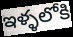
ఇళ్ళలోకి